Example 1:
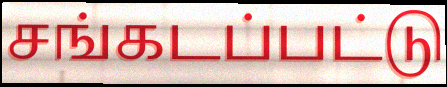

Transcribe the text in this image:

சங்கடப்பட்டு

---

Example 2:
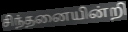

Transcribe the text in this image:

சிந்தனையின்றி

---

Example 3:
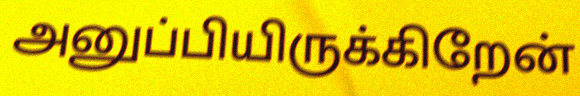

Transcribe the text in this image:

அனுப்பியிருக்கிறேன்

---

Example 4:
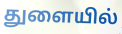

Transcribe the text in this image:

துளையில்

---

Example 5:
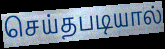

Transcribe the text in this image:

செய்தபடியால்